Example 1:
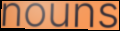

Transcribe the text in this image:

nouns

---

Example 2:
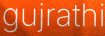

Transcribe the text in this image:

gujrathi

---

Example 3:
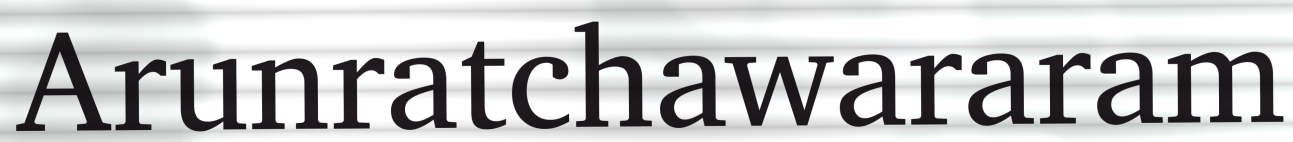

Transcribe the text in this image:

Arunratchawararam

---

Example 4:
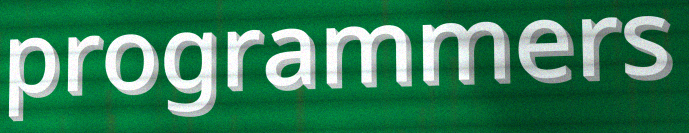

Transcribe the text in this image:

programmers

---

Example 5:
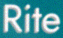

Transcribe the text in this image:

Rite